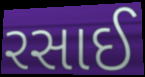
રસાઈ